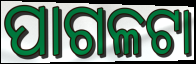
ପାଗଳଟା